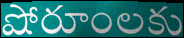
షోరూంలకు